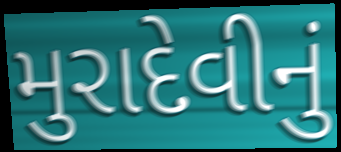
મુરાદેવીનું